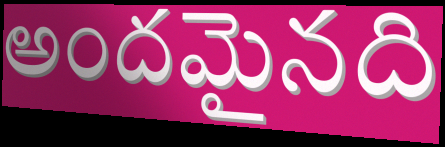
అందమైనది